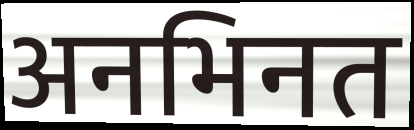
अनभिनत